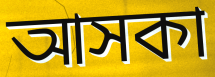
আসকা